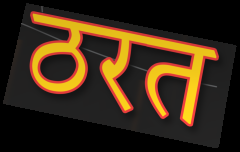
ठरत